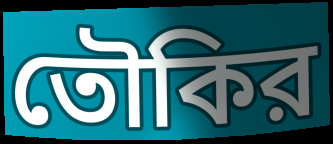
তৌকির